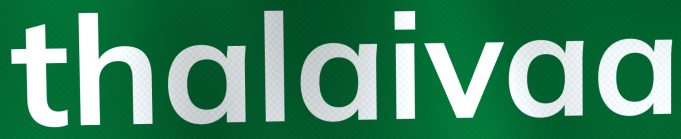
thalaivaa